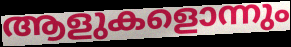
ആളുകളൊന്നും